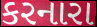
કરનારા